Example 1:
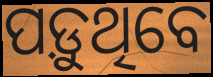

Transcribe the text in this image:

ପଡ଼ୁଥିବେ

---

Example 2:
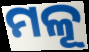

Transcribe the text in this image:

ମଳୂ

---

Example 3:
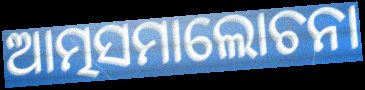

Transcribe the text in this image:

ଆତ୍ମସମାଲୋଚନା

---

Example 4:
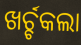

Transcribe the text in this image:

ଖର୍ଚ୍ଚକଲା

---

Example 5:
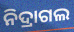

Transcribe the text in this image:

ନିଦ୍ରାଗଲ